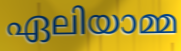
ഏലിയാമ്മ